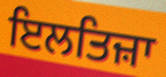
ਇਲਤਿਜ਼ਾ